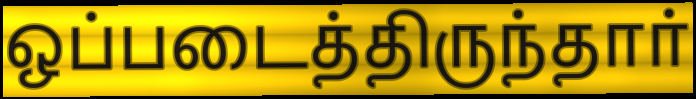
ஒப்படைத்திருந்தார்